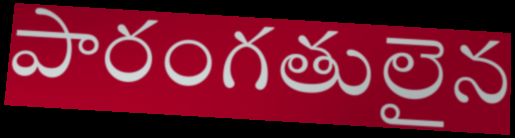
పారంగతులైన